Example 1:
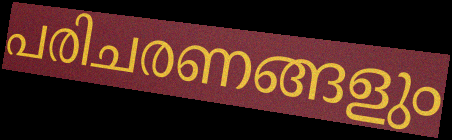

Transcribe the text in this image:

പരിചരണങ്ങളും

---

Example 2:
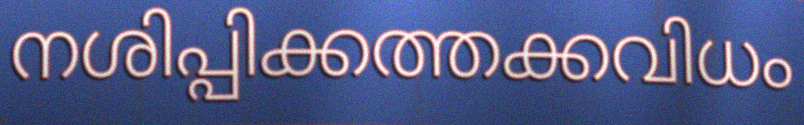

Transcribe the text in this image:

നശിപ്പിക്കത്തക്കവിധം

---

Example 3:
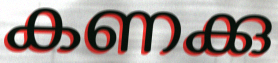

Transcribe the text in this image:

കണക്കു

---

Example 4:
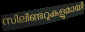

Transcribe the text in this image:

സിലിണ്ടറുകളുമായി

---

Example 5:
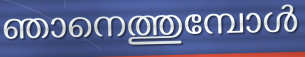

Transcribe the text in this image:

ഞാനെത്തുമ്പോൾ